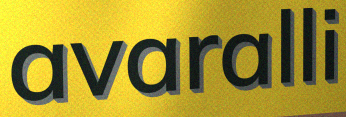
avaralli